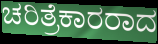
ಚರಿತ್ರೆಕಾರರಾದ